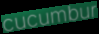
cucumbur